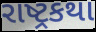
રાષ્ટ્રકથા